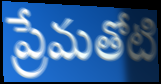
ప్రేమతోటి